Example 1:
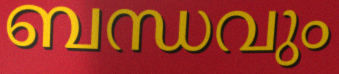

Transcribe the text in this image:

ബന്ധവും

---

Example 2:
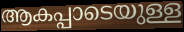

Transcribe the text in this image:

ആകപ്പാടെയുള്ള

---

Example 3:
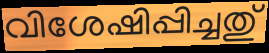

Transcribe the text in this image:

വിശേഷിപ്പിച്ചതു്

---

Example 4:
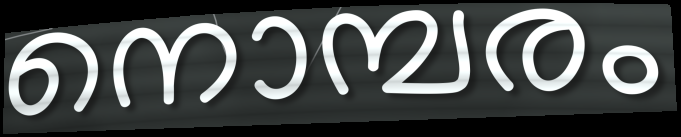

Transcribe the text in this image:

നൊമ്പരം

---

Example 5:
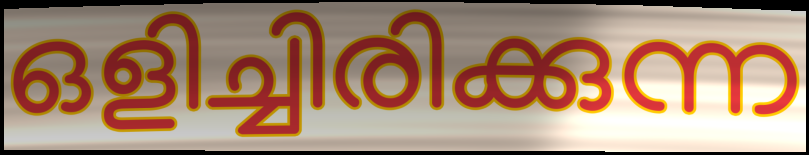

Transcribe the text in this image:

ഒളിച്ചിരിക്കുന്ന